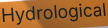
Hydrological